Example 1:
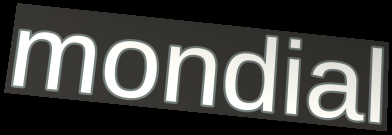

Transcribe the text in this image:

mondial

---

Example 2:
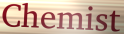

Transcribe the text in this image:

Chemist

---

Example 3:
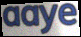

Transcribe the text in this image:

aaye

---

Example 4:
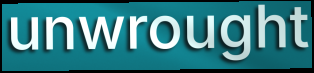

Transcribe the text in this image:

unwrought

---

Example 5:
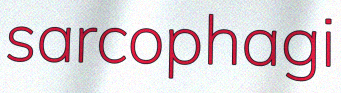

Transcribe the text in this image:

sarcophagi